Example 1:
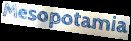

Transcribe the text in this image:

Mesopotamia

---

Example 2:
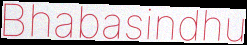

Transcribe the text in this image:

Bhabasindhu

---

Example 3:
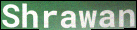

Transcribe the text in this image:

Shrawan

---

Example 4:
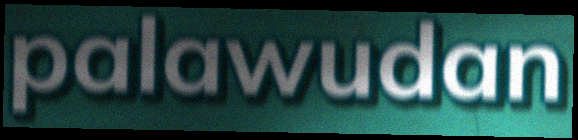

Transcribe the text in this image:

palawudan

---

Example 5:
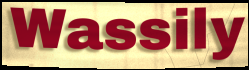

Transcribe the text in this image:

Wassily